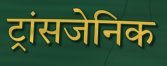
ट्रांसजेनिक